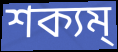
শক্যম্